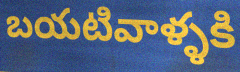
బయటివాళ్ళకి